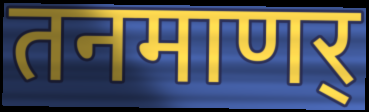
तनमाणर्